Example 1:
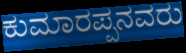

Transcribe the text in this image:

ಕುಮಾರಪ್ಪನವರು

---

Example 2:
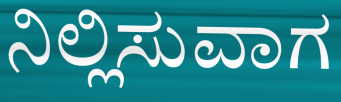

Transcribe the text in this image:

ನಿಲ್ಲಿಸುವಾಗ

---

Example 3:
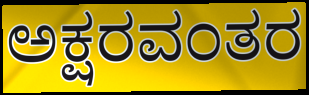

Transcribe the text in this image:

ಅಕ್ಷರವಂತರ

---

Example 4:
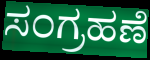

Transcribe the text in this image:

ಸಂಗ್ರಹಣೆ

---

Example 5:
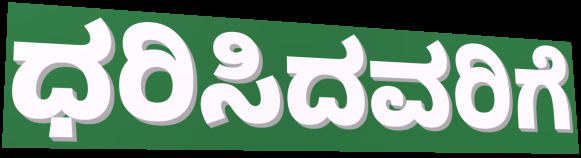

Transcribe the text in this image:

ಧರಿಸಿದವರಿಗೆ